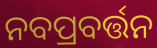
ନବପ୍ରବର୍ତ୍ତନ